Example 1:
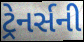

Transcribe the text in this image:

ટ્રેનર્સની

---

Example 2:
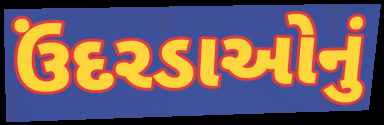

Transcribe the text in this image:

ઉંદરડાઓનું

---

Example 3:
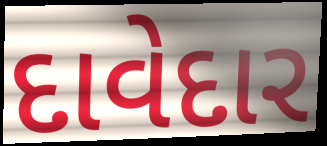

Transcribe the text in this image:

દાવેદાર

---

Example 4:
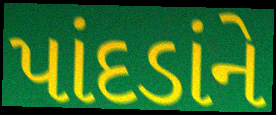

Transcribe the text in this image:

પાંદડાંને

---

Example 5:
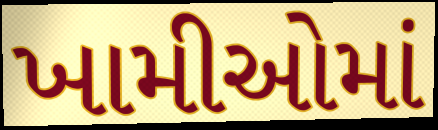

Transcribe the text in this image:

ખામીઓમાં